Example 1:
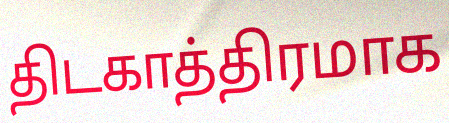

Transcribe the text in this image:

திடகாத்திரமாக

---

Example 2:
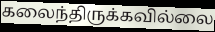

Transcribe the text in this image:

கலைந்திருக்கவில்லை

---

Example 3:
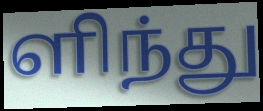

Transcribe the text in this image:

ளிந்து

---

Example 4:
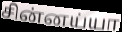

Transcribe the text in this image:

சின்னய்யா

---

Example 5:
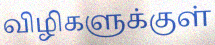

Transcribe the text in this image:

விழிகளுக்குள்